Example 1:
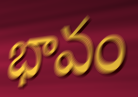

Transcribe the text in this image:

భావం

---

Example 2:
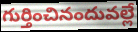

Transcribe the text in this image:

గుర్తించినందువల్లే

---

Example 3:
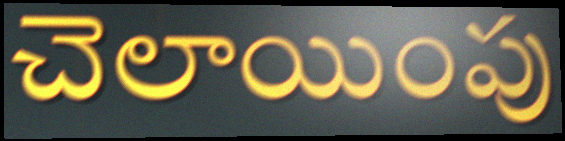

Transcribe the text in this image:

చెలాయింపు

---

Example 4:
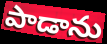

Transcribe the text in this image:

పాడాను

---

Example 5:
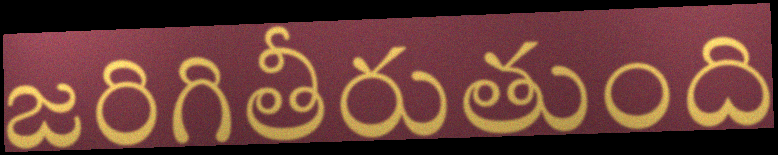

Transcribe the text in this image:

జరిగితీరుతుంది